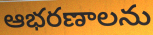
ఆభరణాలను